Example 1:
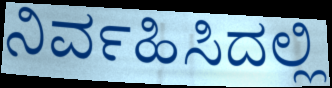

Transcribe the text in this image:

ನಿರ್ವಹಿಸಿದಲ್ಲಿ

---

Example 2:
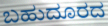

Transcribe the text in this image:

ಬಹುದೂರದ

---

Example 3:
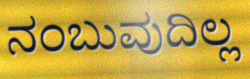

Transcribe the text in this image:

ನಂಬುವುದಿಲ್ಲ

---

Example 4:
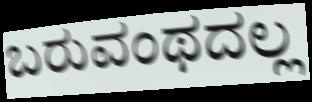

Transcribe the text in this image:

ಬರುವಂಥದಲ್ಲ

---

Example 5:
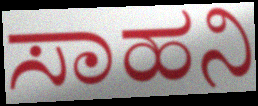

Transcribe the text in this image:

ಸಾಹನಿ